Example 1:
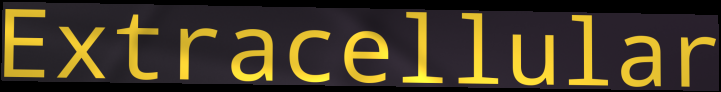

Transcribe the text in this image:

Extracellular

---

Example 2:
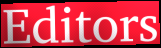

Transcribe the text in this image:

Editors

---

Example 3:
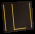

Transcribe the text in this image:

ILI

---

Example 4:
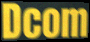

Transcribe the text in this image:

Dcom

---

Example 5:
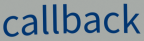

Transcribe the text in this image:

callback